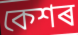
কেশৰ